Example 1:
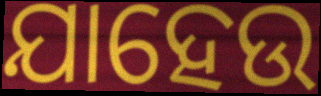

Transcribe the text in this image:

ଯାହେଉ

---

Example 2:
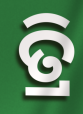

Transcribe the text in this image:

ତ୍ରି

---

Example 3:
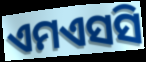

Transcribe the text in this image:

ଏମଏସସି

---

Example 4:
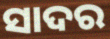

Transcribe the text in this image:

ସାଦର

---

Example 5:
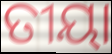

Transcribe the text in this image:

ତୀୟା